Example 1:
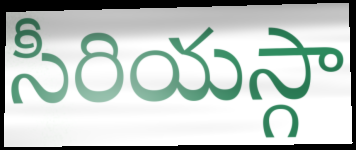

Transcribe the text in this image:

సీరియస్గా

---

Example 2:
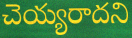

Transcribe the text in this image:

చెయ్యరాదని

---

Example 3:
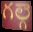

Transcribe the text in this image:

గల్గె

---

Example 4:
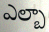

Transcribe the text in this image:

ఎల్బా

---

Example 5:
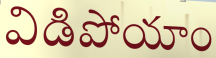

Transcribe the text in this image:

విడిపోయాం